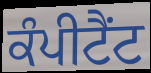
ਕੰਪੀਟੈਂਟ